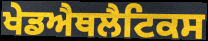
ਖੇਡਐਥਲੈਟਿਕਸ